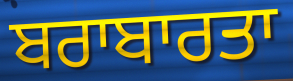
ਬਰਾਬਾਰਤਾ